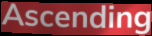
Ascending